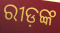
ରୀଡ଼ଙ୍କ